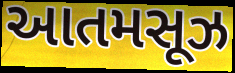
આતમસૂઝ